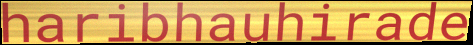
haribhauhirade